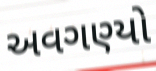
અવગણ્યો